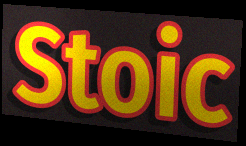
Stoic